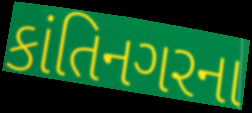
કાંતિનગરના